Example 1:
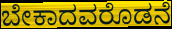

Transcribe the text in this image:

ಬೇಕಾದವರೊಡನೆ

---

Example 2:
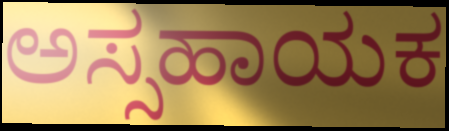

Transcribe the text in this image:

ಅಸ್ಸಹಾಯಕ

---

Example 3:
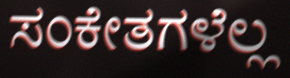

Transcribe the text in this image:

ಸಂಕೇತಗಳೆಲ್ಲ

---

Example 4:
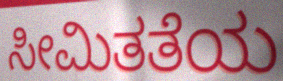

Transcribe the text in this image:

ಸೀಮಿತತೆಯ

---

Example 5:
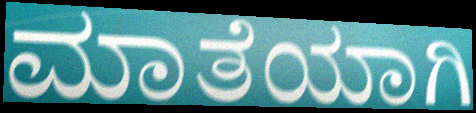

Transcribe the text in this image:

ಮಾತೆಯಾಗಿ